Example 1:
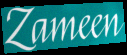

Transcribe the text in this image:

Zameen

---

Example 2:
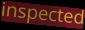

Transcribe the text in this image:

inspected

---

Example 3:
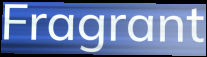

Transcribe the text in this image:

Fragrant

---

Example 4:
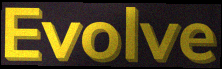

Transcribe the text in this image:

Evolve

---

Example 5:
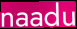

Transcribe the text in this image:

naadu